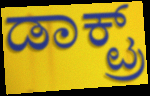
ಡಾಕ್ಟ್ರ್